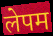
लेपम